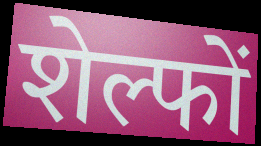
शेल्फों